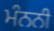
ਮੰਨਨੀ